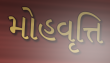
મોહવૃત્તિ